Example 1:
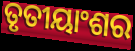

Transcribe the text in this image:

ତୃତୀୟାଂଶର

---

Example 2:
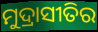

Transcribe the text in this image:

ମୁଦ୍ରାସୀତିର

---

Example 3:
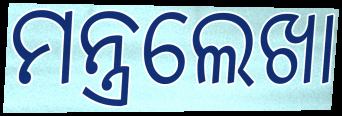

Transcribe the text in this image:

ମନ୍ତ୍ରଲେଖା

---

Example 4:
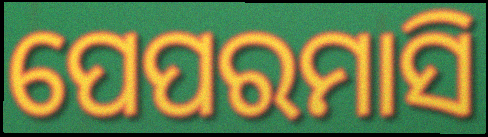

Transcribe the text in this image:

ପେପରମାସି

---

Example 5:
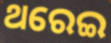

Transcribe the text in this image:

ଥରେଇ